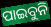
ପାଇବୁନି